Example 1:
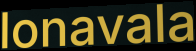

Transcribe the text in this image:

lonavala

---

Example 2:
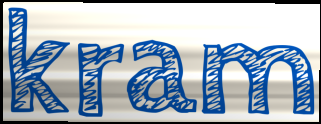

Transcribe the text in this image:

kram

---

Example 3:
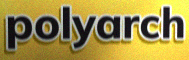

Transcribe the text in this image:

polyarch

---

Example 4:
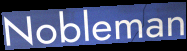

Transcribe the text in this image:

Nobleman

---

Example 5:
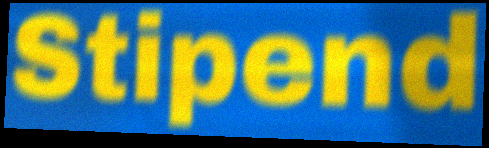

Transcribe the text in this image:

Stipend